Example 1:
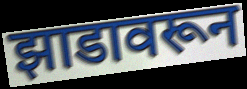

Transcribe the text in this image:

झाडावरून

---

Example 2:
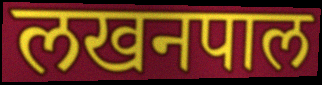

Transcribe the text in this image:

लखनपाल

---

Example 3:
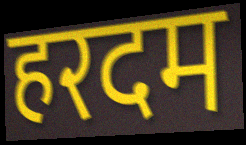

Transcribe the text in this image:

हरदम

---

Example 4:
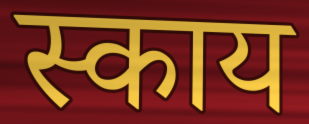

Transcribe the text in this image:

स्काय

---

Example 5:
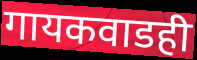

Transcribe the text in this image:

गायकवाडही